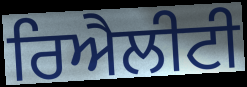
ਰਿਐਲੀਟੀ